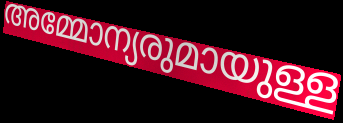
അമ്മോന്യരുമായുള്ള